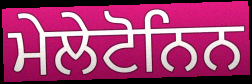
ਮੇਲੇਟੋਨਿਨ